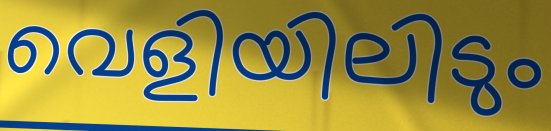
വെളിയിലിടും